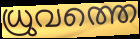
ധ്രുവത്തെ